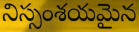
నిస్సంశయమైన